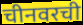
चीनवरची